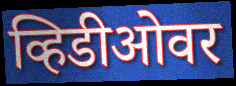
व्हिडीओवर